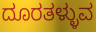
ದೂರತಳ್ಳುವ